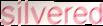
silvered